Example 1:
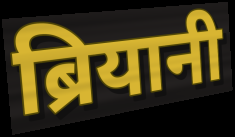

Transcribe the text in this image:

ब्रियानी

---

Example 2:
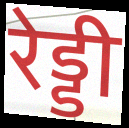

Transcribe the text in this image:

रेड्डी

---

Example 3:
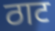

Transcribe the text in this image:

ठाट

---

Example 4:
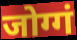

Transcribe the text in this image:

जोग्गं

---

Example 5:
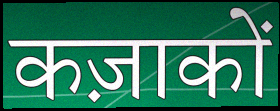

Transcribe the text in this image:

कज़ाकों